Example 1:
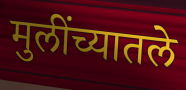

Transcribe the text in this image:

मुलींच्यातले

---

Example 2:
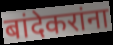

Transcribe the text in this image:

बांदेकरांना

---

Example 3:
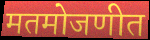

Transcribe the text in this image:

मतमोजणीत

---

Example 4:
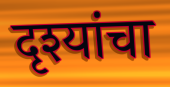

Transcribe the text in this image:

दृश्यांचा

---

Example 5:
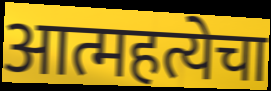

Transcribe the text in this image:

आत्महत्येचा